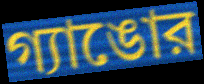
গ্যাঙোর